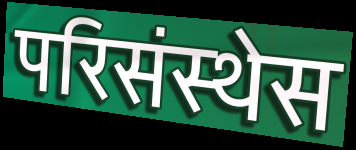
परिसंस्थेस